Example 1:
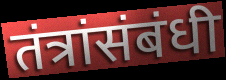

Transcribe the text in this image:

तंत्रांसंबंधी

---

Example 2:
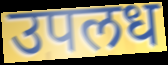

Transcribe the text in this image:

उपलध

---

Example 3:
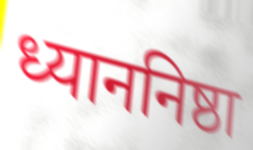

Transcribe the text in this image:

ध्याननिष्ठा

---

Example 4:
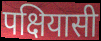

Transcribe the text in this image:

पक्षियासी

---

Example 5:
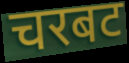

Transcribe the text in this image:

चरबट